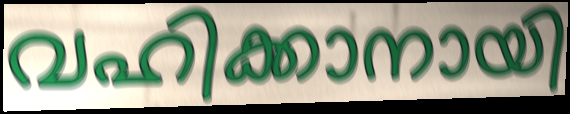
വഹിക്കാനായി